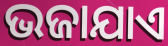
ଭଜାଯାଏ